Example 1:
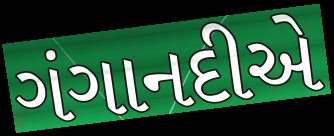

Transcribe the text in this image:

ગંગાનદીએ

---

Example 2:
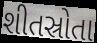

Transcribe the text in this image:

શીતસ્રોતા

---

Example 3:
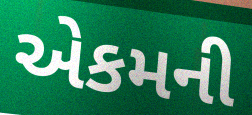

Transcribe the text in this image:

એકમની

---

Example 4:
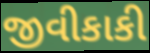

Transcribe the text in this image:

જીવીકાકી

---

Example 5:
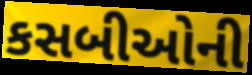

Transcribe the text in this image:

કસબીઓની